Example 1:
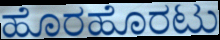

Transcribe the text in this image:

ಹೊರಹೊರಟು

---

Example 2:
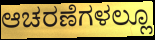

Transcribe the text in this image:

ಆಚರಣೆಗಳಲ್ಲೂ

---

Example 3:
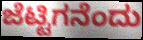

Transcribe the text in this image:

ಜೆಟ್ಟಿಗನೆಂದು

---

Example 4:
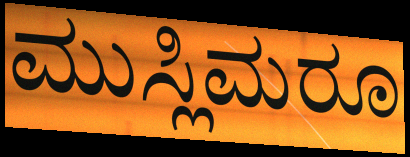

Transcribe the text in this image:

ಮುಸ್ಲಿಮರೂ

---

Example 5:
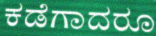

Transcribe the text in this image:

ಕಡೆಗಾದರೂ